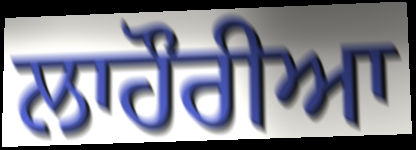
ਲਾਹੌਰੀਆ